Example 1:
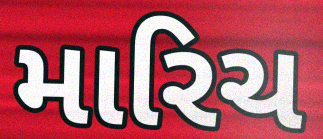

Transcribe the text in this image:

મારિચ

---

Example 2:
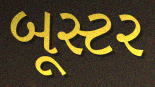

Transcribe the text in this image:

બૂસ્ટર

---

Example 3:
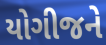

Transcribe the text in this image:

યોગીજને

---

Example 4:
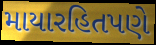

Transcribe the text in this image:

માયારહિતપણે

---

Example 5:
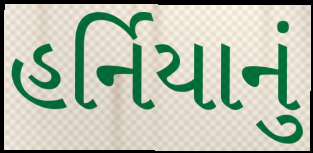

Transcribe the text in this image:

હર્નિયાનું